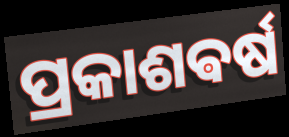
ପ୍ରକାଶଵର୍ଷ